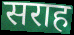
सराह